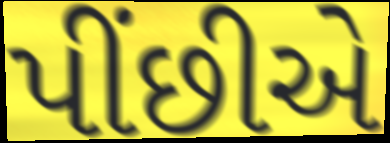
પીંછીએ